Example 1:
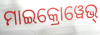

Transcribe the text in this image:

ମାଇକ୍ରୋୱେଭ୍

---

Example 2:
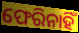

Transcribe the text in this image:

ଫେରିନାହିଁ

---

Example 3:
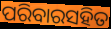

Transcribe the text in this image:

ପରିବାରସହିତ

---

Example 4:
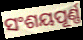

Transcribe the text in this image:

ସଂଶୟପୂର୍ଣ୍ଣ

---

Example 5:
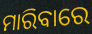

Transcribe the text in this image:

ମାରିବାରେ